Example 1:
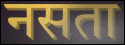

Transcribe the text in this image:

नसता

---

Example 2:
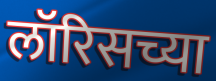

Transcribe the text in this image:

लॉरिसच्या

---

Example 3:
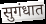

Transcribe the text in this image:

सुगंधात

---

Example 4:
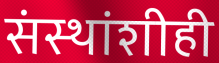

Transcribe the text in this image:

संस्थांशीही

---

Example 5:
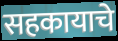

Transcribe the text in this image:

सहकायाचे